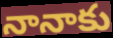
నానాకు